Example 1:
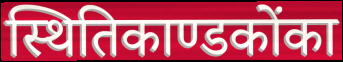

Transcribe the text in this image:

स्थितिकाण्डकोंका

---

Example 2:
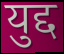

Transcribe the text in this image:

युद्द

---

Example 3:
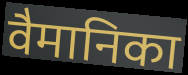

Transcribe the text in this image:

वैमानिका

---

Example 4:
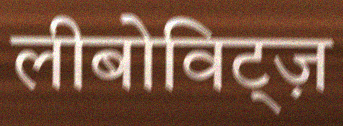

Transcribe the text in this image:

लीबोविट्ज़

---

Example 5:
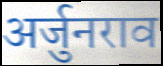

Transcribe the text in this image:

अर्जुनराव